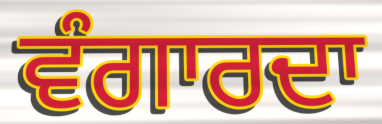
ਵੰਗਾਰਦਾ